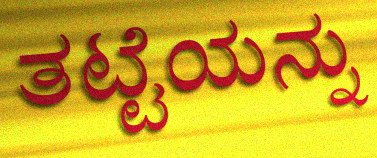
ತಟ್ಟೆಯನ್ನು